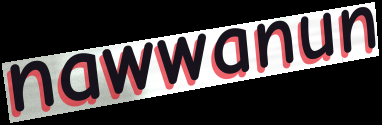
nawwanun